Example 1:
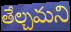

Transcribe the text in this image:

తేల్చమని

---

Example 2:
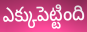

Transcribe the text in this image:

ఎక్కుపెట్టింది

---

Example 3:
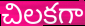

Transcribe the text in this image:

చిలకగా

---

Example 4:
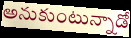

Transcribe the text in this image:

అనుకుంటున్నాడో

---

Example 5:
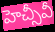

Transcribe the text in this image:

హెచ్సీవీ